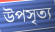
উপসৃত্য